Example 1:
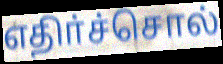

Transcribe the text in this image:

எதிர்ச்சொல்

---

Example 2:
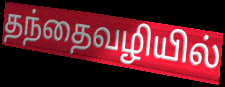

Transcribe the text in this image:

தந்தைவழியில்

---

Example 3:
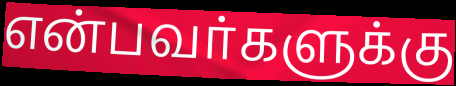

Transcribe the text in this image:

என்பவர்களுக்கு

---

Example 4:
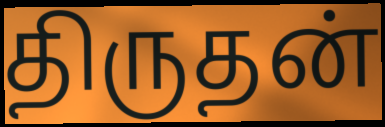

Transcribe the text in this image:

திருதன்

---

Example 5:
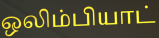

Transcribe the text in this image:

ஒலிம்பியாட்